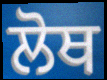
ਲੋਥ